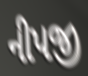
નીપજી